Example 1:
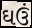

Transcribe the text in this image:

ઘઉં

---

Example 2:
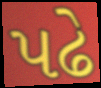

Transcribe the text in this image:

પઢે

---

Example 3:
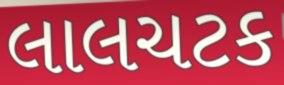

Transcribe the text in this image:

લાલચટક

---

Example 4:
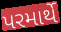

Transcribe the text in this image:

પરમાર્થે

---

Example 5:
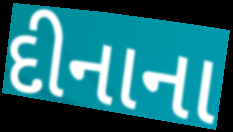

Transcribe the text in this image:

દીનાના